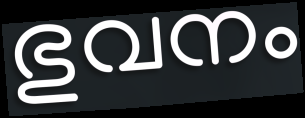
ഭുവനം